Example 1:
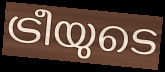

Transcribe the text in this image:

ട്രീയുടെ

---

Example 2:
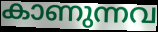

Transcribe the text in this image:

കാണുന്നവ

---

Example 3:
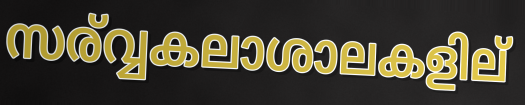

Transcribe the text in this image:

സര്വ്വകലാശാലകളില്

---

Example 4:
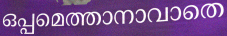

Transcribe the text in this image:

ഒപ്പമെത്താനാവാതെ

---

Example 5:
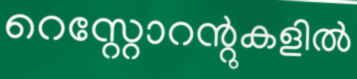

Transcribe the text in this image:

റെസ്റ്റോറന്റുകളിൽ